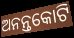
ଅନନ୍ତକୋଟି